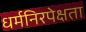
धर्मनिरपेक्षता